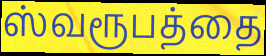
ஸ்வரூபத்தை